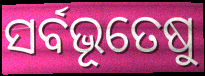
ସର୍ବଭୂତେଷୁ